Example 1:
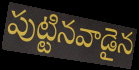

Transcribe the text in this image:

పుట్టినవాడైన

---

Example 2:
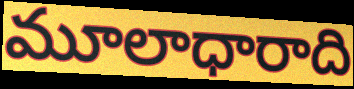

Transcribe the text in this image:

మూలాధారాది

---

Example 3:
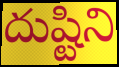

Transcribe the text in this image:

దుష్టిని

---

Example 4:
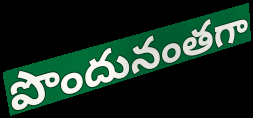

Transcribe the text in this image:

పొందునంతగా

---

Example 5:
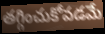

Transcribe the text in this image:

తగ్గించుకోవడమే